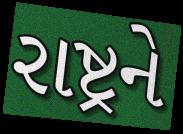
રાષ્ટ્રને